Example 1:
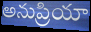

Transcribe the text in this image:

అనుప్రియా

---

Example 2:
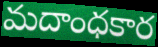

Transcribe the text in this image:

మదాంధకార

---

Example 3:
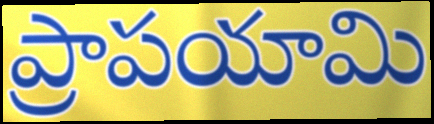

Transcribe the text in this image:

ప్రాపయామి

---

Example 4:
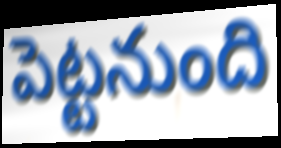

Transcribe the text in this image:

పెట్టనుంది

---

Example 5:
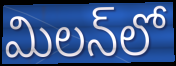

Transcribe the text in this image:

మిలన్‌లో